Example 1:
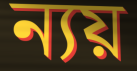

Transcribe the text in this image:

ন্যয়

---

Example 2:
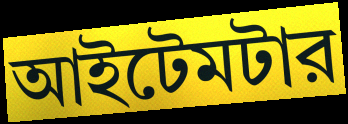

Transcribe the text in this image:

আইটেমটার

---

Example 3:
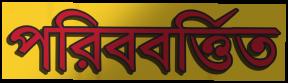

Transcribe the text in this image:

পরিববর্ত্তিত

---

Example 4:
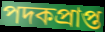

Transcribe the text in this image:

পদকপ্রাপ্ত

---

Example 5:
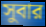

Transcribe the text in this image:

সুবার